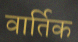
वार्तिक